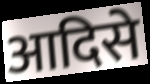
आदिसे